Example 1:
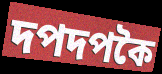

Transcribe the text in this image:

দপদপকৈ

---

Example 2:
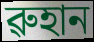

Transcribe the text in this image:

ৱুহান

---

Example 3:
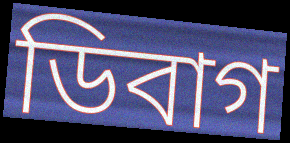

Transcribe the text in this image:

ডিবাগ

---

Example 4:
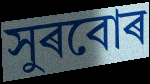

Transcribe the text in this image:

সুৰবোৰ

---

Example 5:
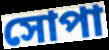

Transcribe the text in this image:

সোপা